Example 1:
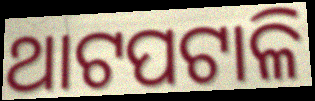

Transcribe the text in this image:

ଥାଟପଟାଳି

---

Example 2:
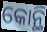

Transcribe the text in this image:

କୋନ୍ଥି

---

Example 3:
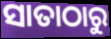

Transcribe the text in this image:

ସାତାଠାରୁ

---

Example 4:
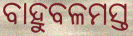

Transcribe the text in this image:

ବାହୁବଳମସ୍ତ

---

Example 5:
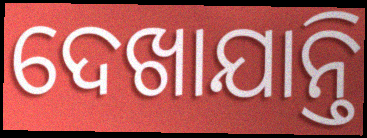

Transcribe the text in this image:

ଦେଖାଯାନ୍ତି